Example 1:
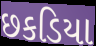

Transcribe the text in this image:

છકડિયા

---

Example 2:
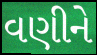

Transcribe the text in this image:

વણીને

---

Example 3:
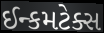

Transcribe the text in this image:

ઈન્કમટેક્સ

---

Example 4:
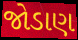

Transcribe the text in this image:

જોડાણ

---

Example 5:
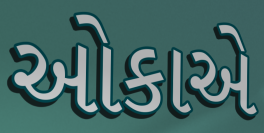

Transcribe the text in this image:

ઓકાએ